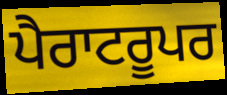
ਪੈਰਾਟਰੂਪਰ